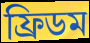
ফ্রিডম